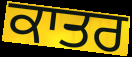
ਕਾਤਰ